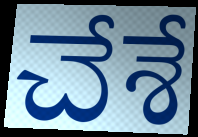
చేశే